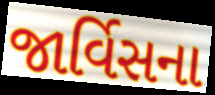
જાર્વિસના